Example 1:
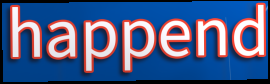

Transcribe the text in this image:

happend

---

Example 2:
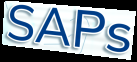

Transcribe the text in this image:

SAPs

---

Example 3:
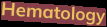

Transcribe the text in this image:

Hematology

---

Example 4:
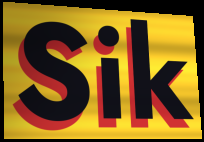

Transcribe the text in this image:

Sik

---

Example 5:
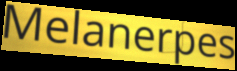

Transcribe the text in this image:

Melanerpes